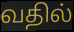
வதில்